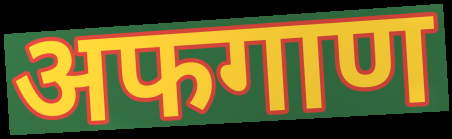
अफगाण